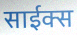
साईक्स